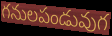
గనులపండువుగ